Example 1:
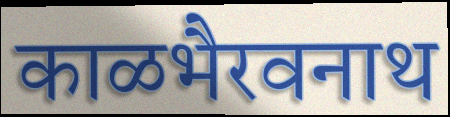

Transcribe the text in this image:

काळभैरवनाथ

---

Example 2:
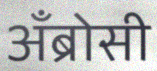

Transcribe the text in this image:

अँब्रोसी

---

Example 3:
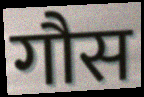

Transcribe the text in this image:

गौस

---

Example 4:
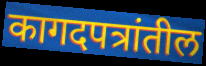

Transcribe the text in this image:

कागदपत्रांतील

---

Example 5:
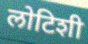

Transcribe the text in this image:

लोटिशी